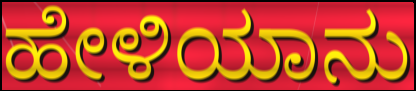
ಹೇಳಿಯಾನು